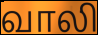
வாலி